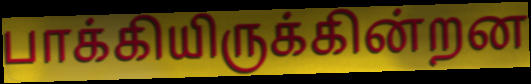
பாக்கியிருக்கின்றன